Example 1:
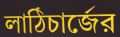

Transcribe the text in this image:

লাঠিচার্জের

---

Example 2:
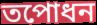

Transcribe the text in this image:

তপোধন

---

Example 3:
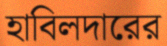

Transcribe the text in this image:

হাবিলদারের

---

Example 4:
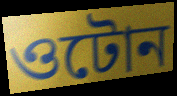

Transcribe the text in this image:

ওটোন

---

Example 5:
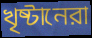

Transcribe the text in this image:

খৃষ্টানেরা